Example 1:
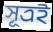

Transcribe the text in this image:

সূত্ৰই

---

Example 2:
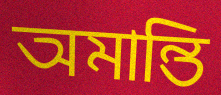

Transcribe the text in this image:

অমান্তি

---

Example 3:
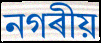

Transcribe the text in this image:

নগৰীয়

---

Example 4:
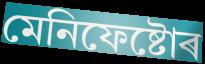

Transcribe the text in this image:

মেনিফেষ্টোৰ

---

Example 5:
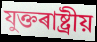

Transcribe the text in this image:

যুক্তৰাষ্ট্ৰীয়